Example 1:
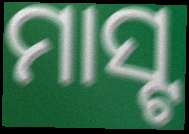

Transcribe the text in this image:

ମାସ୍ଟ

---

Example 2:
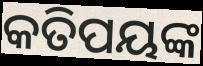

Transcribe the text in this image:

କତିପୟଙ୍କ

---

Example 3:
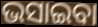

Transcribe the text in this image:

ଭସାଇବା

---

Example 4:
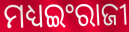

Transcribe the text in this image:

ମଧ୍ୟଇଂରାଜୀ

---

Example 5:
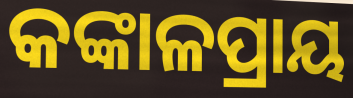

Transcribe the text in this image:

କଙ୍କାଳପ୍ରାୟ